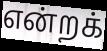
என்றக்